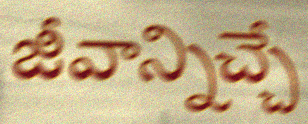
జీవాన్నిచ్చే